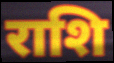
राशि